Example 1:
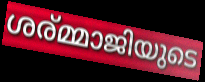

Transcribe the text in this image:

ശര്മ്മാജിയുടെ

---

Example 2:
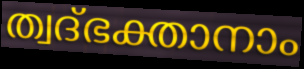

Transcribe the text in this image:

ത്വദ്ഭക്താനാം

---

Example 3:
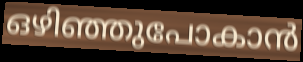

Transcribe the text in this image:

ഒഴിഞ്ഞുപോകാൻ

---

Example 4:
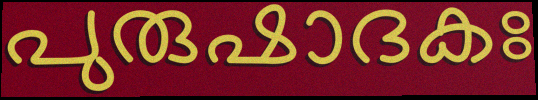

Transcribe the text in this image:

പുരുഷാദകഃ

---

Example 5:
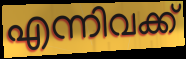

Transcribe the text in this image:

എന്നിവക്ക്